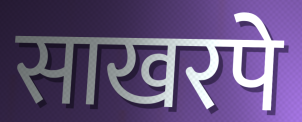
साखरपे